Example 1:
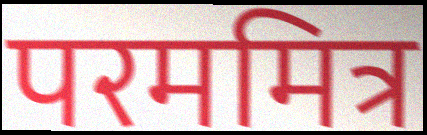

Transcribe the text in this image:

परममित्र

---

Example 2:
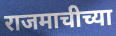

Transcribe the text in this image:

राजमाचीच्या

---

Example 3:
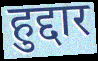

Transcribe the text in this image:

हुद्दार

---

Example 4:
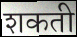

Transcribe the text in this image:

शकती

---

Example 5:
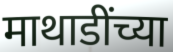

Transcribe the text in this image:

माथाडींच्या